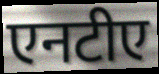
एनटीए